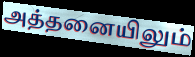
அத்தனையிலும்